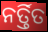
ନର୍ତ୍ତିତ